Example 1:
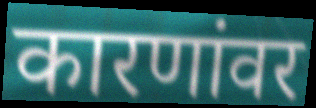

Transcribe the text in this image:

कारणांवर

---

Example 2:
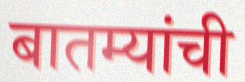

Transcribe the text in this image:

बातम्यांची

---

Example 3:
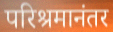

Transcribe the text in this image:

परिश्रमानंतर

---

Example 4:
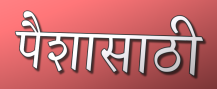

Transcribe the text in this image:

पैशासाठी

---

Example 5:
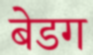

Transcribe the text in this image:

बेडग